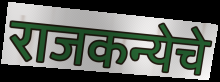
राजकन्येचे